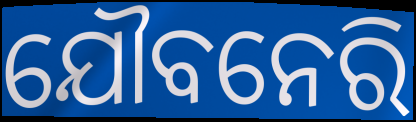
ଯୌବନେରି